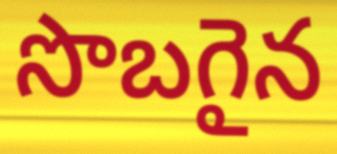
సొబగైన